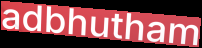
adbhutham